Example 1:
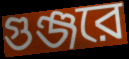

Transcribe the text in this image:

গুঞ্জরে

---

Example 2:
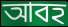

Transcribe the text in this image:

আবহ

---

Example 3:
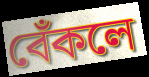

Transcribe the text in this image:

বেঁকলে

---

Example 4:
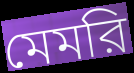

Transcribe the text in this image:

মেমরি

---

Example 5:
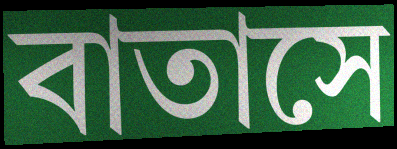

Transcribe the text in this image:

বাতাসে